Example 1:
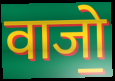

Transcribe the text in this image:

वाजो॒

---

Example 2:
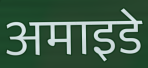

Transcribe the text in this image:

अमाइडे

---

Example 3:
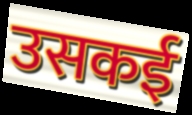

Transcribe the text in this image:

उसकई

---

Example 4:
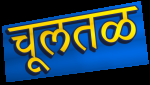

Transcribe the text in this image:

चूलतळ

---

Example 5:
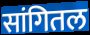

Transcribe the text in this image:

सांगितल